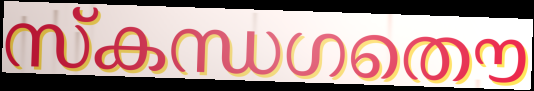
സ്കന്ധഗതൌ